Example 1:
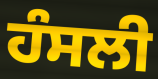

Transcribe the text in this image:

ਹੰਸਲੀ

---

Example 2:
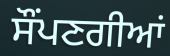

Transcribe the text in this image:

ਸੌਂਪਣਗੀਆਂ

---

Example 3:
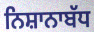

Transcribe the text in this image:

ਨਿਸ਼ਾਨਾਬੱਧ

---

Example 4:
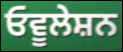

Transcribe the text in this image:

ਓਵੂਲੇਸ਼ਨ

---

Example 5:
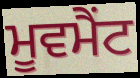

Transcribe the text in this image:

ਮੂਵਮੈਂਟ